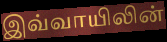
இவ்வாயிலின்